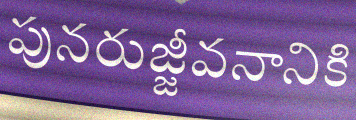
పునరుజ్జీవనానికి